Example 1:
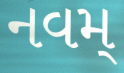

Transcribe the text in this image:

નવમ્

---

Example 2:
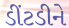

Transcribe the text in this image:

ડીંટડીને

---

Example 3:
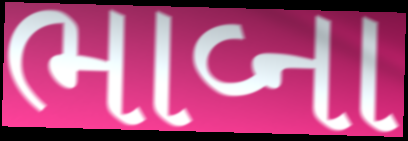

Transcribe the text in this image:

ભાવ્ના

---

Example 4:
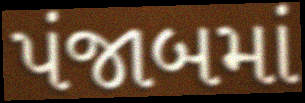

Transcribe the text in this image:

પંજાબમાં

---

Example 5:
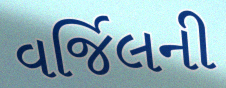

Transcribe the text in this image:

વર્જિલની